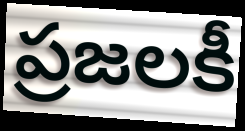
ప్రజలకీ